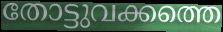
തോട്ടുവക്കത്തെ